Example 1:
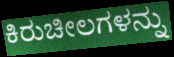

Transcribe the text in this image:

ಕಿರುಚೀಲಗಳನ್ನು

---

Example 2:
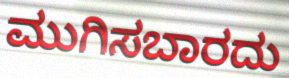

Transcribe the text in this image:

ಮುಗಿಸಬಾರದು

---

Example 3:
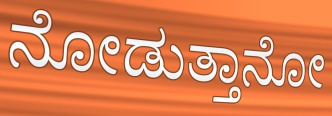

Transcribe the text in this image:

ನೋಡುತ್ತಾನೋ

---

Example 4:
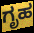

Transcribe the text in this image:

ಗೃಹ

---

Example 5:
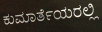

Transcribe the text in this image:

ಕುಮಾರ್ತೆಯರಲ್ಲಿ